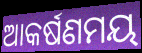
ଆକର୍ଷଣମୟ